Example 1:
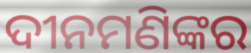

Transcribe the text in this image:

ଦୀନମଣିଙ୍କର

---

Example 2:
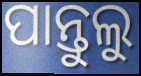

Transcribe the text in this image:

ପାନ୍ତୁଲୁ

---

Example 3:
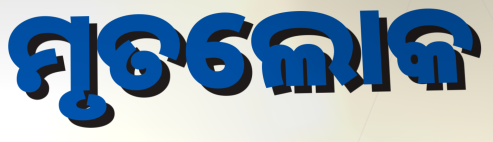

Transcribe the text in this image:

ମୃତଲୋକ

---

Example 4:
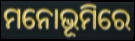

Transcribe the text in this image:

ମନୋଭୂମିରେ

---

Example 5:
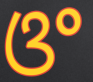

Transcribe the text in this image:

ଓଂ